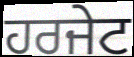
ਹਰਜੇਟ